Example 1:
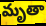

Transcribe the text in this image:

మృతా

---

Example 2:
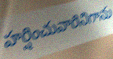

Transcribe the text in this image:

హర్షించువారినిగాను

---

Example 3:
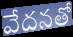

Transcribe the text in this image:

వేదనతో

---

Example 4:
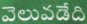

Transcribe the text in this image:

వెలువడేది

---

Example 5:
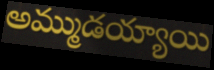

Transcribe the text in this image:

అమ్ముడయ్యాయి